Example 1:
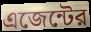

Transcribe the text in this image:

এজেন্টের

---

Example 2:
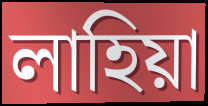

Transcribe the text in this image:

লাহিয়া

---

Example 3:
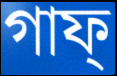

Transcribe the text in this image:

গাফ্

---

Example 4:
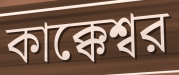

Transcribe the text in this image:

কাক্কেশ্বর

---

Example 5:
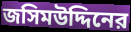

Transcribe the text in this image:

জসিমউদ্দিনের